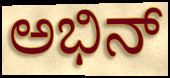
ಅಭಿನ್